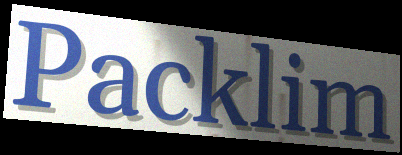
Packlim